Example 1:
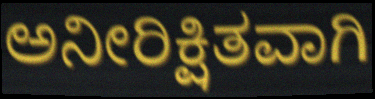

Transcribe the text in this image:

ಅನೀರಿಕ್ಷಿತವಾಗಿ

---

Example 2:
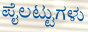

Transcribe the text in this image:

ಪೈಲಟ್ಟುಗಳು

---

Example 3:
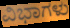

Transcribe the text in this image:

ವಿಭಾಗಳು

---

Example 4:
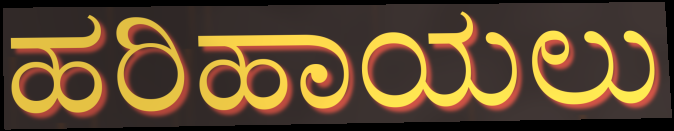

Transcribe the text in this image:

ಹರಿಹಾಯಲು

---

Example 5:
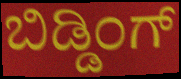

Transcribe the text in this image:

ಬಿಡ್ಡಿಂಗ್